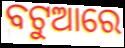
ବଟୁଆରେ